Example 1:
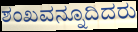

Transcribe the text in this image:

ಶಂಖವನ್ನೂದಿದರು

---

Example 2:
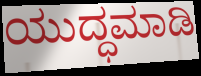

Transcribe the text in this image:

ಯುದ್ಧಮಾಡಿ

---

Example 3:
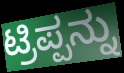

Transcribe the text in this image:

ಟ್ರಿಪ್ಪನ್ನು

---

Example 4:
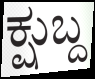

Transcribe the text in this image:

ಕ್ಷುಬ್ದ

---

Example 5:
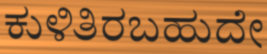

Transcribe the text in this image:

ಕುಳಿತಿರಬಹುದೇ